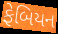
ફેબિયન